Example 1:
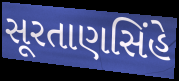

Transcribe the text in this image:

સૂરતાણસિંહે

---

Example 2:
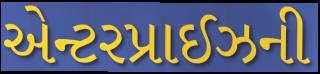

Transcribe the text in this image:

એન્ટરપ્રાઈઝની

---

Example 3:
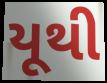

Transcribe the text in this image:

યૂથી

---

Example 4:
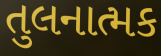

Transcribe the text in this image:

તુલનાત્મક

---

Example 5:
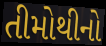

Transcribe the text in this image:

તીમોથીનો